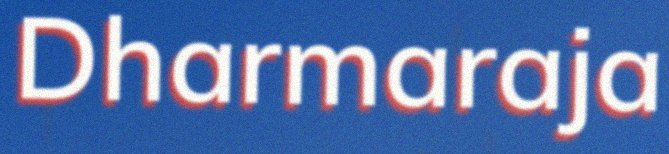
Dharmaraja